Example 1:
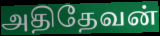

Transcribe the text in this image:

அதிதேவன்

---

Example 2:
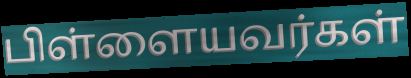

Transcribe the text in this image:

பிள்ளையவர்கள்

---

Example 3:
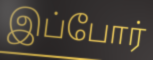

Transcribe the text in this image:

இப்போர்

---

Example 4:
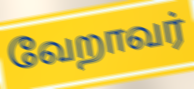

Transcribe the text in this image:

வேறாவர்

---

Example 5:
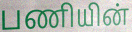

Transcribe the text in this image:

பணியின்